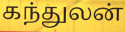
கந்துலன்